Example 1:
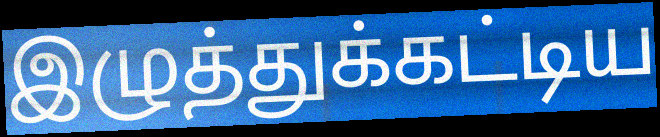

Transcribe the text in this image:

இழுத்துக்கட்டிய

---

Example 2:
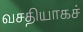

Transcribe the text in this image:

வசதியாகச்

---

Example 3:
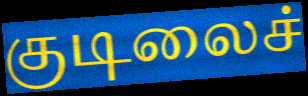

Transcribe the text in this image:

குடிலைச்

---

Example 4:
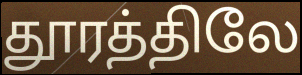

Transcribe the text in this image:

தூரத்திலே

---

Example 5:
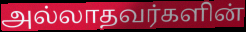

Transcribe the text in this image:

அல்லாதவர்களின்